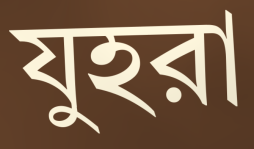
যুহরা